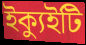
ইক্যুইটি